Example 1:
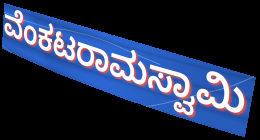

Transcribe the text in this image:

ವೆಂಕಟರಾಮಸ್ವಾಮಿ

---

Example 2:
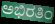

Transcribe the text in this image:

ಅಭಿರತಿಂ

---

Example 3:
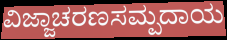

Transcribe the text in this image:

ವಿಜ್ಜಾಚರಣಸಮ್ಪದಾಯ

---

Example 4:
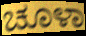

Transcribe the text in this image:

ಚೂಳಾ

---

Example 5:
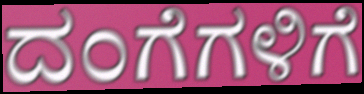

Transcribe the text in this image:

ದಂಗೆಗಳಿಗೆ